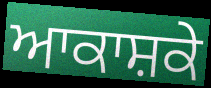
ਆਕਾਸ਼ਕੇ